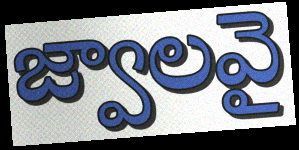
జ్వాలవై